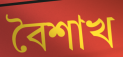
বৈশাখ